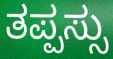
ತಪ್ಪಸ್ಸು